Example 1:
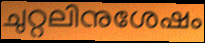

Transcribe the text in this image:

ചുറ്റലിനുശേഷം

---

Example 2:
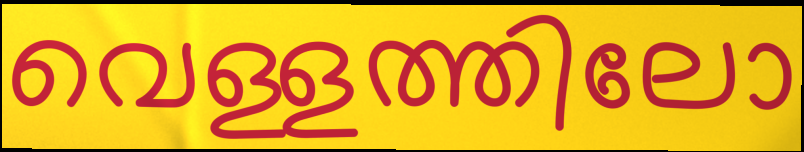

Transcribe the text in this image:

വെള്ളത്തിലോ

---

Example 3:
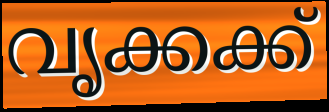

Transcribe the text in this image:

വൃക്കക്ക്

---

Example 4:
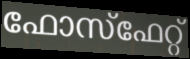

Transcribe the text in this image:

ഫോസ്ഫേറ്റ്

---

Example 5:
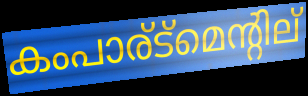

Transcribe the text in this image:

കംപാര്ട്മെന്റില്